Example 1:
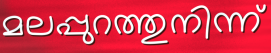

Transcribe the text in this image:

മലപ്പുറത്തുനിന്ന്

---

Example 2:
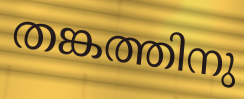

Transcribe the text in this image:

തങ്കത്തിനു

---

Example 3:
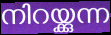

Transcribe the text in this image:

നിറയ്ക്കുന്ന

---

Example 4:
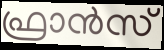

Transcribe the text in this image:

ഫ്രാൻസ്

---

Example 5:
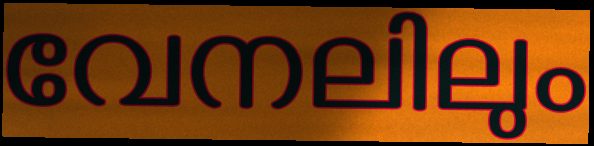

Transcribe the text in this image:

വേനലിലും